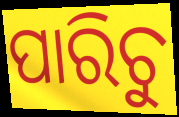
ପାରିଚୁ